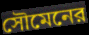
সৌমেনের